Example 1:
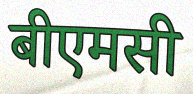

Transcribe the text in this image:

बीएमसी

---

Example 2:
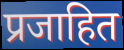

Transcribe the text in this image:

प्रजाहित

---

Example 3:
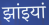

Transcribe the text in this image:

झांइयां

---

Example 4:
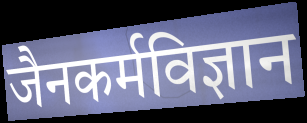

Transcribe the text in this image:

जैनकर्मविज्ञान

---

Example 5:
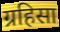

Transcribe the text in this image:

ग्रहिसा